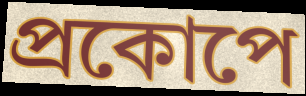
প্রকোপে